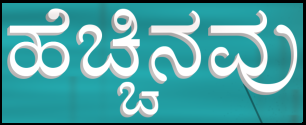
ಹೆಚ್ಚಿನವು